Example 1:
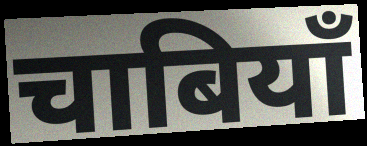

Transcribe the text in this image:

चाबियाँ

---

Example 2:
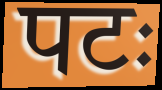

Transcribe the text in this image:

पटः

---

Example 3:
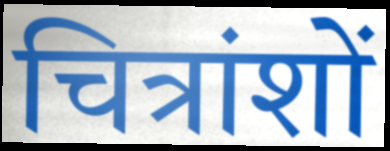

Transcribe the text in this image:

चित्रांशों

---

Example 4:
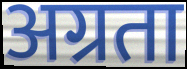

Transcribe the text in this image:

अग्रता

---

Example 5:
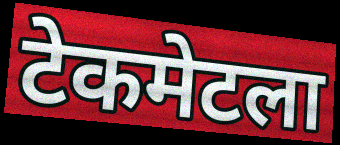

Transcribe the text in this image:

टेकमेटला